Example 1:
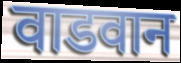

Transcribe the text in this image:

वाडवान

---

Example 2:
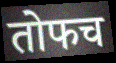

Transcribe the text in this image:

तोफच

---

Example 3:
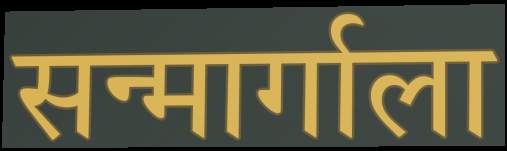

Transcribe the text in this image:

सन्मार्गाला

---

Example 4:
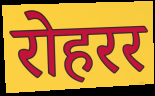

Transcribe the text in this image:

रोहरर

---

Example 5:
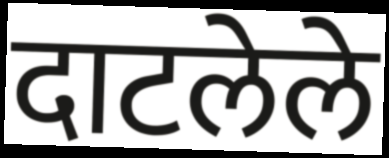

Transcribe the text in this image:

दाटलेले